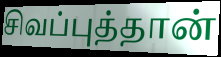
சிவப்புத்தான்